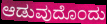
ಆಡುವುದೊಂದು